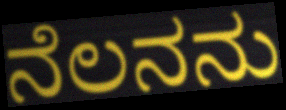
ನೆಲನನು